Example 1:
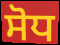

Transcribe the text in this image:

ਸੋਧ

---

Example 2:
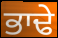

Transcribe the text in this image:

ਭਾਢੇ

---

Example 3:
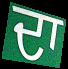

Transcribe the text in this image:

ਦਾ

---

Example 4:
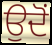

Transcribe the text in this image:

ਉਦੋਂ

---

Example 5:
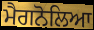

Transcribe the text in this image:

ਮੈਗਨੋਲਿਆ